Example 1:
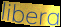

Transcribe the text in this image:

libera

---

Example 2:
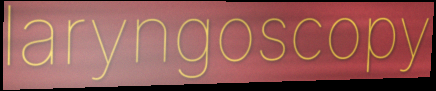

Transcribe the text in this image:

laryngoscopy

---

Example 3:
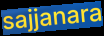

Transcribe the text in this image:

sajjanara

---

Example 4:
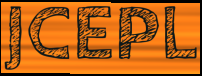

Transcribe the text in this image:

JCEPL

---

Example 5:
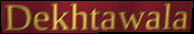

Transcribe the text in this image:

Dekhtawala